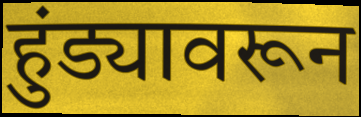
हुंड्यावरून